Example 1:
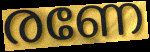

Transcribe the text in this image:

രണേ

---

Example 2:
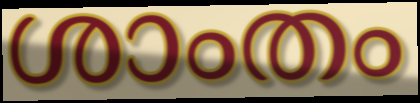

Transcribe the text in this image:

ശാംതം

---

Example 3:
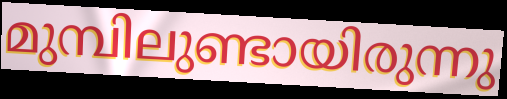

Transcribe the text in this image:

മുമ്പിലുണ്ടായിരുന്നു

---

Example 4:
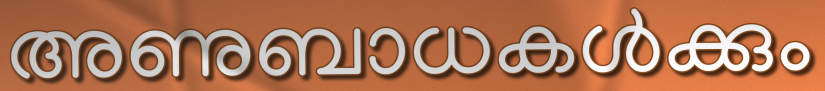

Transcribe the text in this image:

അണുബാധകൾക്കും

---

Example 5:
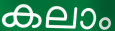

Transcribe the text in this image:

കലാം